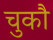
चुकौ